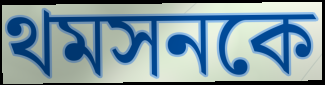
থমসনকে